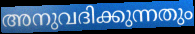
അനുവദിക്കുന്നതും